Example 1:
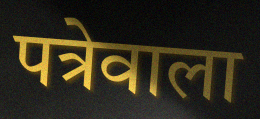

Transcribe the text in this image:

पत्रेवाला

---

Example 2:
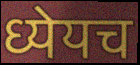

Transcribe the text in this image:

ध्येयच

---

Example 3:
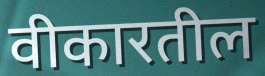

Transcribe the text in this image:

वीकारतील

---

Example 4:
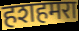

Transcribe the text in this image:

हशहमरा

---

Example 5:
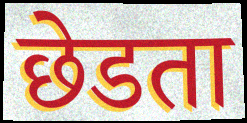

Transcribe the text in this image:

छेडता